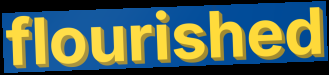
flourished